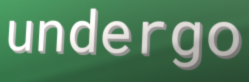
undergo